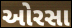
ઓરસા